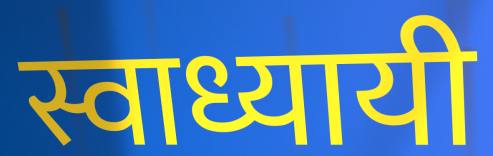
स्वाध्यायी